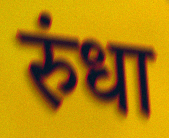
रुंधा